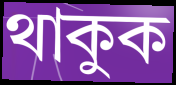
থাকুক